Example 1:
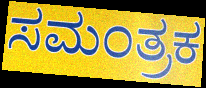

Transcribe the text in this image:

ಸಮಂತ್ರಕ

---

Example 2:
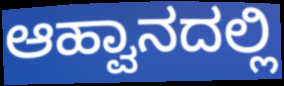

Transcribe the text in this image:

ಆಹ್ವಾನದಲ್ಲಿ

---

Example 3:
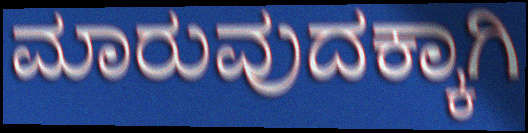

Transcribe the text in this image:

ಮಾರುವುದಕ್ಕಾಗಿ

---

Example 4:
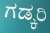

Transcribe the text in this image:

ಗಡ್ಕರಿ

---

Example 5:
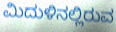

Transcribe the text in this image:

ಮಿದುಳಿನಲ್ಲಿರುವ